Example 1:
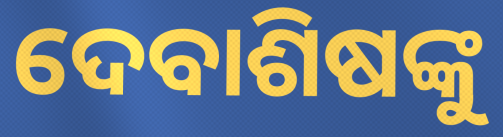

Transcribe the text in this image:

ଦେବାଶିଷଙ୍କୁ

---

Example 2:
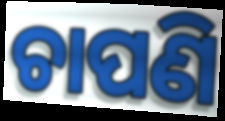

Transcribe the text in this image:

ଚାପଣି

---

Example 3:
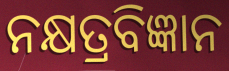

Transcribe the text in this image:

ନକ୍ଷତ୍ରବିଜ୍ଞାନ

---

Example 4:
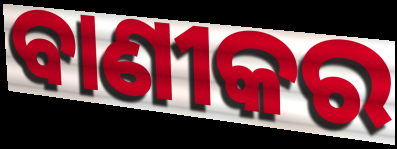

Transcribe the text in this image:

ବାଣୀକର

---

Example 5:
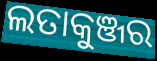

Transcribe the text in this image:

ଲତାକୁଞ୍ଜର